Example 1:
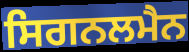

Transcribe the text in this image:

ਸਿਗਨਲਮੈਨ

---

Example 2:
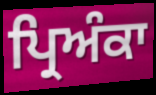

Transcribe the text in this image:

ਪ੍ਰਿਅੰਕਾ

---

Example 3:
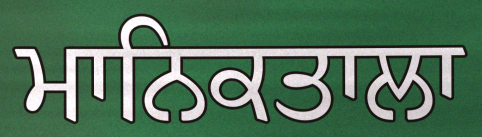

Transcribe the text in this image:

ਮਾਨਿਕਤਾਲਾ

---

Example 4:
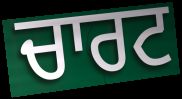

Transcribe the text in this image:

ਚਾਰਟ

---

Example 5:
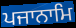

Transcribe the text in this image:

ਪਜਾਨਾਮਿ